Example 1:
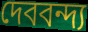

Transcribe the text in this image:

দেববন্দ্য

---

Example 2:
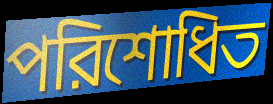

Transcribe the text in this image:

পরিশোধিত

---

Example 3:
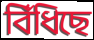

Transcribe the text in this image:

বিঁধিছে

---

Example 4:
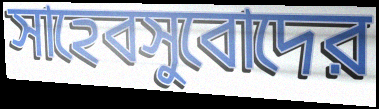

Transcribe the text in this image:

সাহেবসুবোদের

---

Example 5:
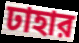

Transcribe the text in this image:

ঢাহার